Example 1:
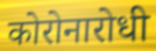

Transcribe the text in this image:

कोरोनारोधी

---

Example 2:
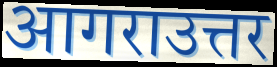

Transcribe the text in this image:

आगराउत्तर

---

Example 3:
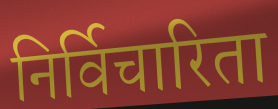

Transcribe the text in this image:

निर्विचारिता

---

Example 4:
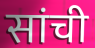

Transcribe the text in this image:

सांची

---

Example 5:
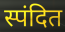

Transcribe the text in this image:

स्पंदित